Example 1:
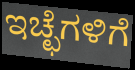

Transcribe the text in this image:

ಇಚ್ಛೆಗಳಿಗೆ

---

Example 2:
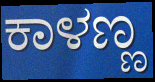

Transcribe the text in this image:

ಕಾಳಣ್ಣ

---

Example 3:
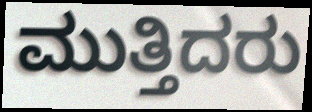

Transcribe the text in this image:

ಮುತ್ತಿದರು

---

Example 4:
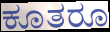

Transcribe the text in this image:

ಕೂತರೂ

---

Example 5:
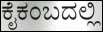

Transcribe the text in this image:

ಕೈಕಂಬದಲ್ಲಿ